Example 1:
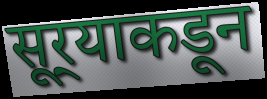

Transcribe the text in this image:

सूर्याकडून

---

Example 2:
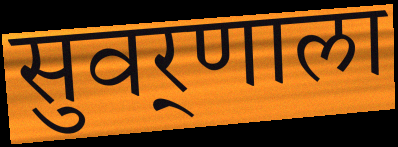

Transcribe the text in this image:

सुवर्णाला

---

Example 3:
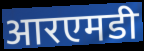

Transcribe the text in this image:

आरएमडी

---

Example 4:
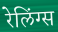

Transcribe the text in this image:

रेलिंग्स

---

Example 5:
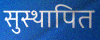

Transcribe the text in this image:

सुस्थापित